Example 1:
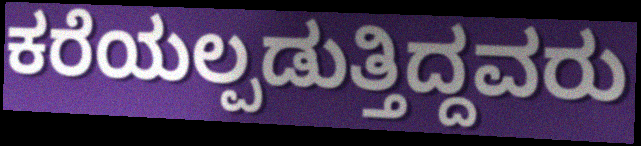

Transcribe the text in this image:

ಕರೆಯಲ್ಪಡುತ್ತಿದ್ದವರು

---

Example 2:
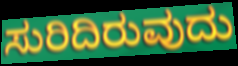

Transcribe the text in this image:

ಸುರಿದಿರುವುದು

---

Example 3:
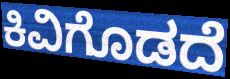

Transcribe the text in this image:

ಕಿವಿಗೊಡದೆ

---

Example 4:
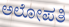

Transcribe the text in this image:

ಅಲೋಪತಿ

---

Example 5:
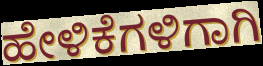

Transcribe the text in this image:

ಹೇಳಿಕೆಗಳಿಗಾಗಿ